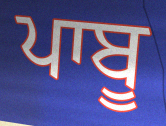
ਪਾਬੂ